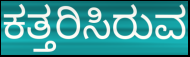
ಕತ್ತರಿಸಿರುವ